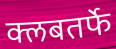
क्लबतर्फे